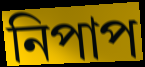
নিপাপ